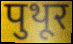
पुथूर